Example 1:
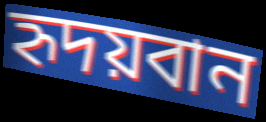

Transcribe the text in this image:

হৃদয়বান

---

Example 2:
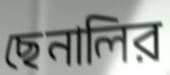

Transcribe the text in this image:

ছেনালির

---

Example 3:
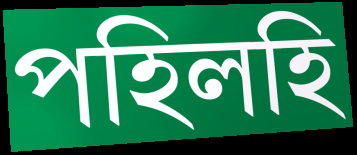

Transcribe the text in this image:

পহিলহি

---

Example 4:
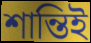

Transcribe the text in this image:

শান্তিই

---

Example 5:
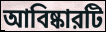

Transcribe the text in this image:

আবিষ্কারটি